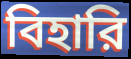
বিহারি